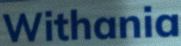
Withania